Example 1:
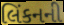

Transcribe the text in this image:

લિંકનની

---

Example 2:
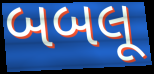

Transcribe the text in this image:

બબલૂ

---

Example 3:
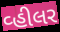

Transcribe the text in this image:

વ્હીલર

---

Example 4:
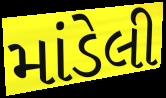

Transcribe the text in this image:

માંડેલી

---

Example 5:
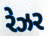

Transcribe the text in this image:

રેઝર